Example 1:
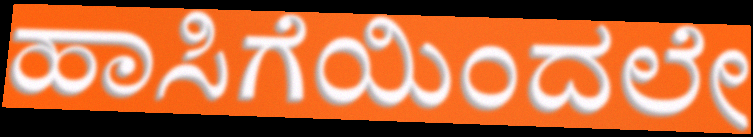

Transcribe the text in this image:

ಹಾಸಿಗೆಯಿಂದಲೇ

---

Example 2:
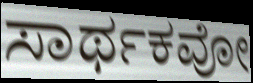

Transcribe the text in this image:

ಸಾರ್ಥಕವೋ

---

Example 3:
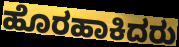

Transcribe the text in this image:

ಹೊರಹಾಕಿದರು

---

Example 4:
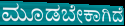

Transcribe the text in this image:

ಮೂಡಬೇಕಾಗಿದೆ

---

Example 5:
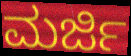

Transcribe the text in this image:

ಮರ್ಜಿ